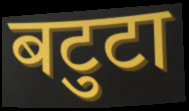
बटुटा